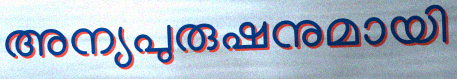
അന്യപുരുഷനുമായി